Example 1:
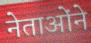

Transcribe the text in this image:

नेताओंने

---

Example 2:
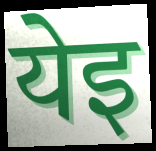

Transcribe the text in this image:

येइ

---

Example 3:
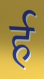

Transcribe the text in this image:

र्ह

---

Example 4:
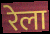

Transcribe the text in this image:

रेला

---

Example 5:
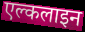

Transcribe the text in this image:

एल्कलाइन